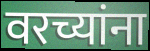
वरच्यांना